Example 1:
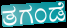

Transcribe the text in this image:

ತಗಂಡೆ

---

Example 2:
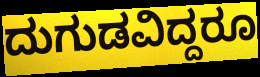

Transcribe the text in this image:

ದುಗುಡವಿದ್ದರೂ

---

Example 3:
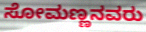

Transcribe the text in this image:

ಸೋಮಣ್ಣನವರು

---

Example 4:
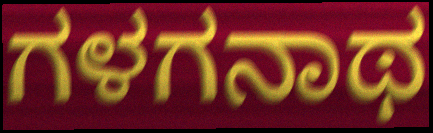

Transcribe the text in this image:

ಗಳಗನಾಥ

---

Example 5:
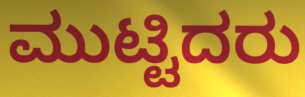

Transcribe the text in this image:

ಮುಟ್ಟಿದರು